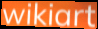
wikiart